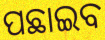
ପଛାଇବ